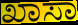
ಖಾಸಾ